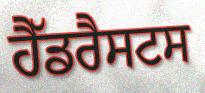
ਹੈੱਡਰੈਸਟਸ